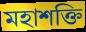
মহাশক্তি